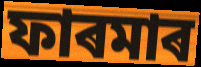
ফাৰমাৰ